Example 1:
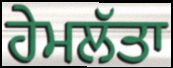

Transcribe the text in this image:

ਹੇਮਲੱਤਾ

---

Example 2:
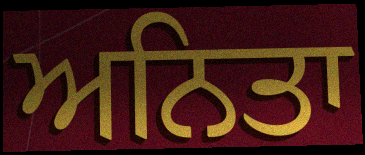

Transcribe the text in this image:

ਅਨਿਤਾ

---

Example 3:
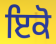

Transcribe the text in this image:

ਇਕੋ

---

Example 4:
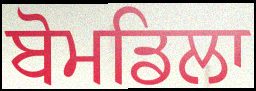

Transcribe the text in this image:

ਬੋਮਡਿਲਾ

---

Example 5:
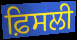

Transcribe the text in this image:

ਫ਼ਿਸਲੀ